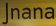
Jnana